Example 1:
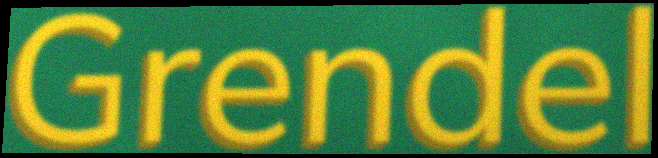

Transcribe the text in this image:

Grendel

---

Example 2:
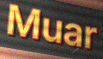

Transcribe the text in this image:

Muar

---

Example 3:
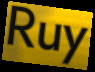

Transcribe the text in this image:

Ruy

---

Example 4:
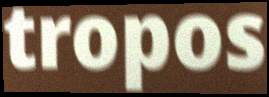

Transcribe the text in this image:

tropos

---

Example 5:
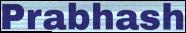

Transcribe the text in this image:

Prabhash